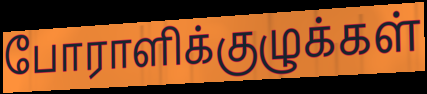
போராளிக்குழுக்கள்